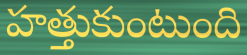
హత్తుకుంటుంది